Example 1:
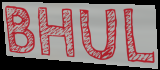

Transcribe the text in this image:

BHUL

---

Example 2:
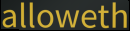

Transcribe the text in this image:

alloweth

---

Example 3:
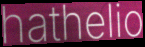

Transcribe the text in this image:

hathelio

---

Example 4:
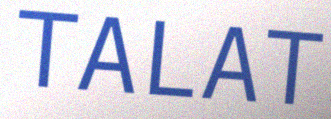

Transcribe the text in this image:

TALAT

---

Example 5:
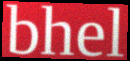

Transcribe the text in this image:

bhel